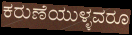
ಕರುಣೆಯುಳ್ಳವರೂ